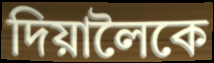
দিয়ালৈকে